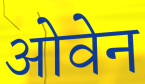
ओवेन